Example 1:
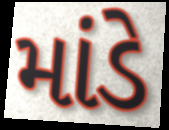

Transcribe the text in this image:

માંડે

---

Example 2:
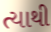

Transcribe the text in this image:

ત્યાથી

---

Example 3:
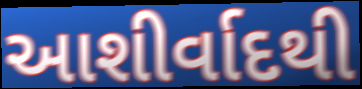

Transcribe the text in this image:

આશીર્વાદથી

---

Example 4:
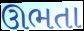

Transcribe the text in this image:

ઊભતા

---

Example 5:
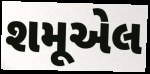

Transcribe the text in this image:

શમૂએલ